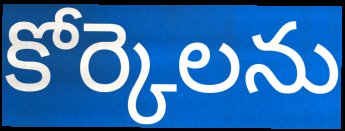
కోర్కెలను